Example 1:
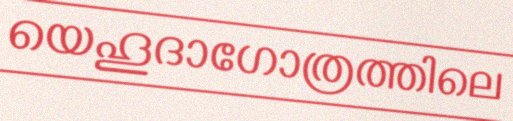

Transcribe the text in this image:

യെഹൂദാഗോത്രത്തിലെ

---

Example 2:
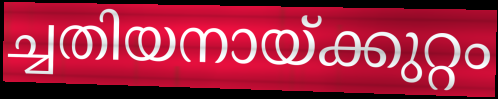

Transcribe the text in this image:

ച്ചതിയനായ്ക്കുറ്റം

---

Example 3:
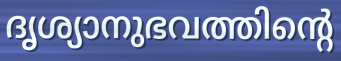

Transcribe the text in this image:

ദൃശ്യാനുഭവത്തിന്റെ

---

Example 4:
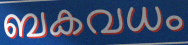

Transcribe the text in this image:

ബകവധം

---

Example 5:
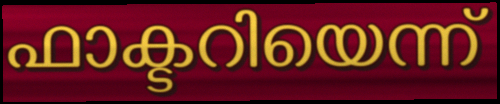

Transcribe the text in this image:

ഫാക്ടറിയെന്ന്